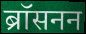
ब्रॉसनन